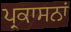
ਪ੍ਰਕਾਸਨਾਂ